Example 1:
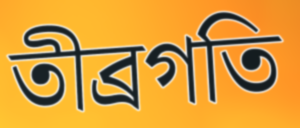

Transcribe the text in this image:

তীব্রগতি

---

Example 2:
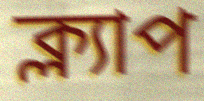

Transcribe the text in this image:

ক্ল্যাপ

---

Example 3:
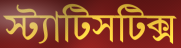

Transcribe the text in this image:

স্ট্যাটিসটিক্স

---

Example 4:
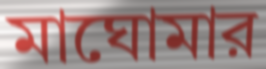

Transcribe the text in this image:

মাঘোমার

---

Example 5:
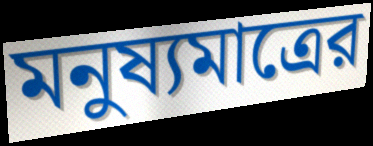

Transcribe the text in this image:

মনুষ্যমাত্রের